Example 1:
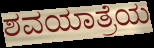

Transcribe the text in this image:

ಶವಯಾತ್ರೆಯ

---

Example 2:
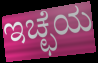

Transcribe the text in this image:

ಇಚ್ಛೆಯ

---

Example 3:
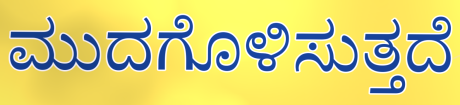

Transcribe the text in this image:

ಮುದಗೊಳಿಸುತ್ತದೆ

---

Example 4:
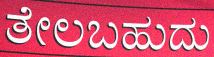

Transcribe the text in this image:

ತೇಲಬಹುದು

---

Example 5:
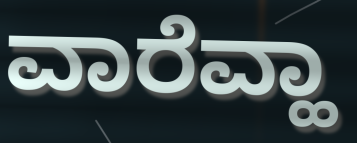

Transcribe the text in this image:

ವಾರೆವ್ಹಾ